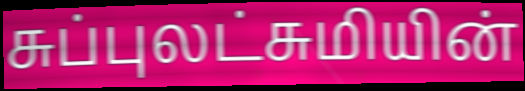
சுப்புலட்சுமியின்